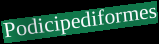
Podicipediformes